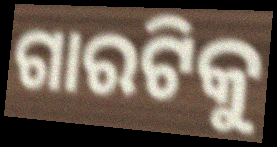
ଗାରଟିକୁ